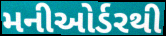
મનીઓર્ડરથી